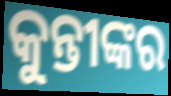
କୁନ୍ତୀଙ୍କର